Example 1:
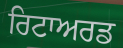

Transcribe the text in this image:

ਰਿਟਾਅਰਡ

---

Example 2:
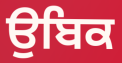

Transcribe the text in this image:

ਉਬਿਕ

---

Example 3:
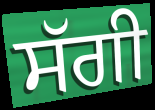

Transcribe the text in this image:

ਸੱਗੀ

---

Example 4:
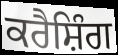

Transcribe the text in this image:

ਕਰੈਸ਼ਿੰਗ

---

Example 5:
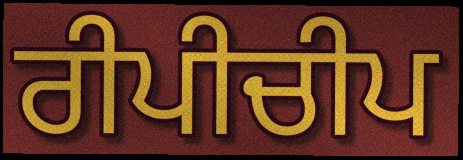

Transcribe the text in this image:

ਰੀਪੀਚੀਪ